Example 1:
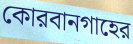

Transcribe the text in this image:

কোরবানগাহের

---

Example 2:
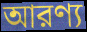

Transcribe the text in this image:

আরণ্য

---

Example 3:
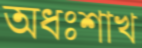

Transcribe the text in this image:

অধঃশাখ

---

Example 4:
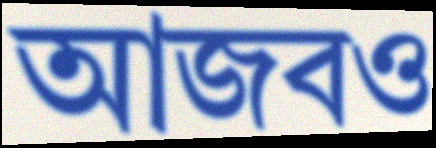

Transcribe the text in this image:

আজবও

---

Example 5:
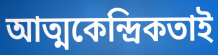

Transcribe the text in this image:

আত্মকেন্দ্রিকতাই